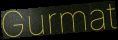
Gurmat